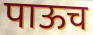
पाऊच